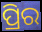
ପ୍ରିର